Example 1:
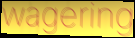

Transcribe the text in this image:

wagering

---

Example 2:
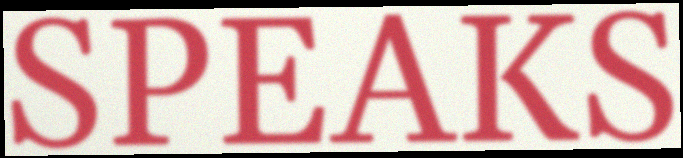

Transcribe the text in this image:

SPEAKS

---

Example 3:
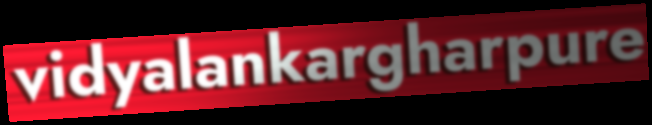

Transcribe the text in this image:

vidyalankargharpure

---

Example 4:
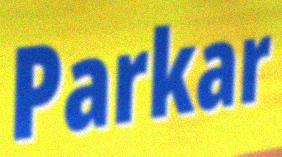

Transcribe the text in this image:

Parkar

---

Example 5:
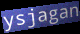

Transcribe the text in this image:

ysjagan